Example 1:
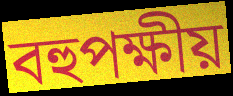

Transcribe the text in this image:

বহুপক্ষীয়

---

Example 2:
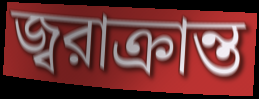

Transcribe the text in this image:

জ্বরাক্রান্ত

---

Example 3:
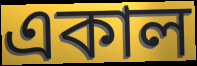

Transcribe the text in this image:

একাল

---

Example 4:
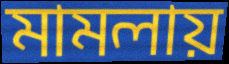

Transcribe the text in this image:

মামলায়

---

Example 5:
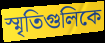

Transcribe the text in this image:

স্মৃতিগুলিকে